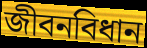
জীবনবিধান